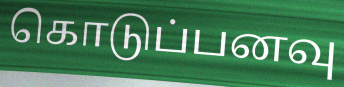
கொடுப்பனவு